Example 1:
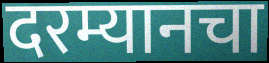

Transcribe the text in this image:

दरम्यानचा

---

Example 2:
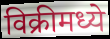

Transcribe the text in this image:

विक्रीमध्ये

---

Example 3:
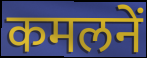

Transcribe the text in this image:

कमलनें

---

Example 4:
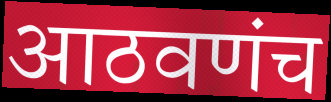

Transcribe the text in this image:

आठवणंच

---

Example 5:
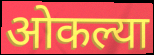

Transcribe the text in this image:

ओकल्या